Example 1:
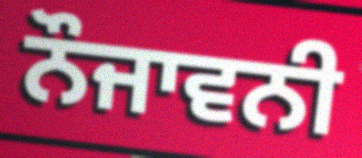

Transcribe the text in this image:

ਨੌਜਾਵਨੀ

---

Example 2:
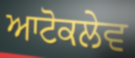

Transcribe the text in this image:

ਆਟੋਕਲੇਵ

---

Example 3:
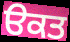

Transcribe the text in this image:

ੳਕਤ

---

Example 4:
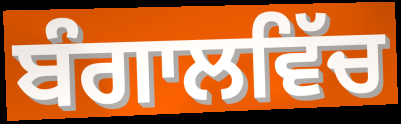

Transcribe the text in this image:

ਬੰਗਾਲਵਿੱਚ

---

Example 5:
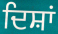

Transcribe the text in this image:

ਦਿਸ਼ਾਂ